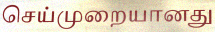
செய்முறையானது